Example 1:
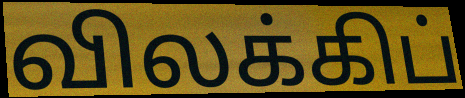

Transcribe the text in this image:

விலக்கிப்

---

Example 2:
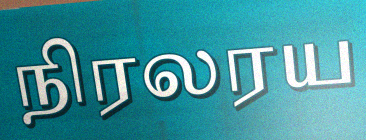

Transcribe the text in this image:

நிரலரய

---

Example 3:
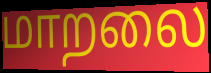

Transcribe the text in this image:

மாறலை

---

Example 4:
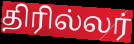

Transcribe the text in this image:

திரில்லர்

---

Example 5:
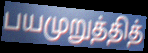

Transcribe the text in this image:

பயமுறுத்தித்